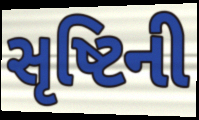
સૃષ્ટિની